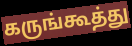
கருங்கூத்து